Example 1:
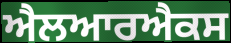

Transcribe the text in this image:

ਐਲਆਰਐਕਸ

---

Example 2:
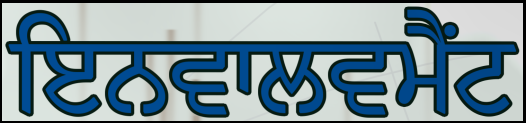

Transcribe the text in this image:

ਇਨਵਾਲਵਮੈਂਟ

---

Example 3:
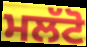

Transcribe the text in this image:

ਮਲੱਟੋ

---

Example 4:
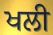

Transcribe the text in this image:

ਖਲੀ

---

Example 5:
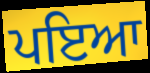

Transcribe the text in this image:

ਪਇਆ